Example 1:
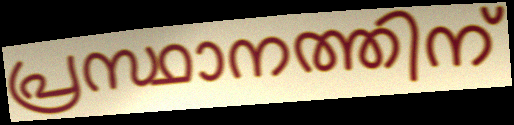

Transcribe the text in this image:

പ്രസ്ഥാനത്തിന്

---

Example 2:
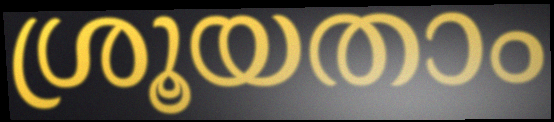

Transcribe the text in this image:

ശ്രൂയതാം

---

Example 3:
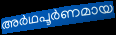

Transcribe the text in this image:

അർഥപൂർണമായ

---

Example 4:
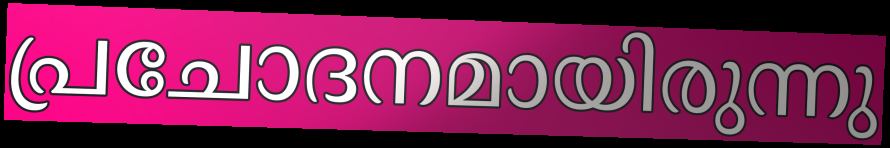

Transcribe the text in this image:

പ്രചോദനമായിരുന്നു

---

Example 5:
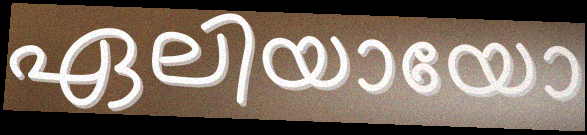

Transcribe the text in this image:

ഏലിയായോ